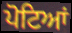
ਪੋਟਿਆਂ